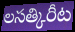
లసత్కిరీట